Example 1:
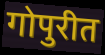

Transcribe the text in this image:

गोपुरीत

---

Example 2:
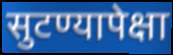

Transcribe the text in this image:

सुटण्यापेक्षा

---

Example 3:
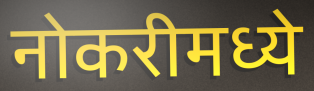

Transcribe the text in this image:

नोकरीमध्ये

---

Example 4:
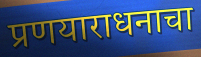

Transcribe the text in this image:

प्रणयाराधनाचा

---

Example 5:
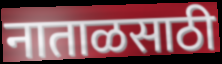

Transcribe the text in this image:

नाताळसाठी